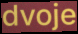
dvoje